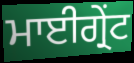
ਮਾਈਗ੍ਰੇਂਟ